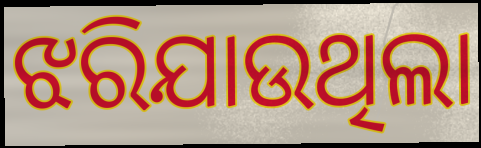
ଝରିଯାଉଥିଲା